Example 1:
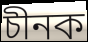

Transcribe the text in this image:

চীনক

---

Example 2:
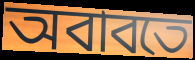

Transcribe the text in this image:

অবাবতে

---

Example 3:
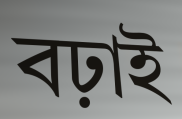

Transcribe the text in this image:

বঢ়াই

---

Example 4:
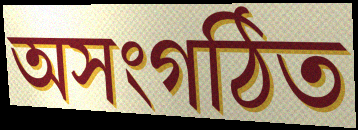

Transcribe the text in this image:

অসংগঠিত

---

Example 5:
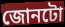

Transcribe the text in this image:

জোনটো